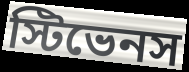
স্টিভেনস